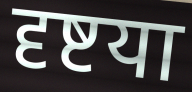
दृष्टया